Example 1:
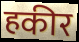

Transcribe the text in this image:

हकीर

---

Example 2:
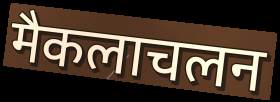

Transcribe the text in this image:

मैकलाचलन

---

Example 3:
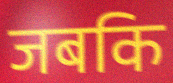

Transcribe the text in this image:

जबकि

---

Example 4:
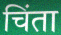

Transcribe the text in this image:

चिंता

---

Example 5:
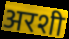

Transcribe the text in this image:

अरशी